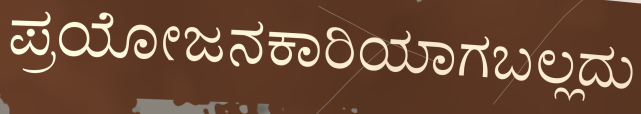
ಪ್ರಯೋಜನಕಾರಿಯಾಗಬಲ್ಲದು